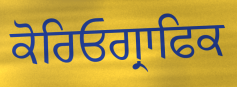
ਕੋਰਿਓਗ੍ਰਾਫਿਕ